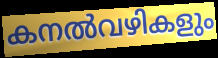
കനൽവഴികളും